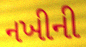
નખીની